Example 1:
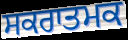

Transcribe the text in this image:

ਸਕਰਾਤਮਕ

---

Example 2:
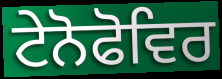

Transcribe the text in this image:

ਟੇਨੋਫੋਵਿਰ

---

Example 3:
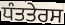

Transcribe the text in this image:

ਧੰਤਤੇਰਸ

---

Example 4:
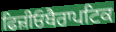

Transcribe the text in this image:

ਫਿਜ਼ੀਓਥੈਰਾਪਟਿਕ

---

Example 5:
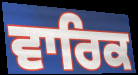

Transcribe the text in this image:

ਵਾਰਿਕ